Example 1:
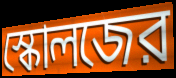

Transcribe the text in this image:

স্কোলজের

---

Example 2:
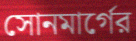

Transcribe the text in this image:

সোনমার্গের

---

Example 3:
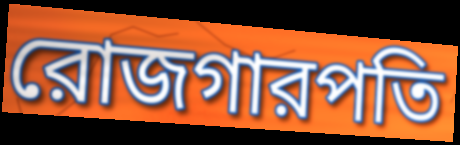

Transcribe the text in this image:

রোজগারপতি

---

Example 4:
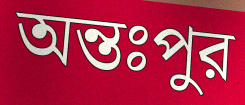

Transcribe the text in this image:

অন্তঃপুর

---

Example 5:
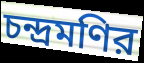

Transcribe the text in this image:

চন্দ্রমণির